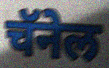
चॅनेल